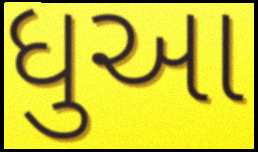
ધુઆ